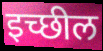
इच्छील